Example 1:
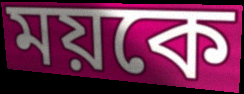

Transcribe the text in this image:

ময়কে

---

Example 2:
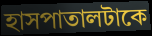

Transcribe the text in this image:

হাসপাতালটাকে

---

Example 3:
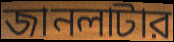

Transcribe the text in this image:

জানলাটার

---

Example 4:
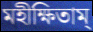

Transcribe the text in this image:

মহীক্ষিতাম্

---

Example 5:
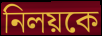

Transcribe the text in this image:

নিলয়কে